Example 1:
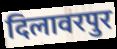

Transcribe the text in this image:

दिलावरपुर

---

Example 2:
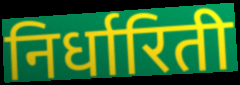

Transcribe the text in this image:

निर्धारिती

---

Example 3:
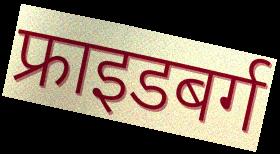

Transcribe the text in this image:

फ्राइडबर्ग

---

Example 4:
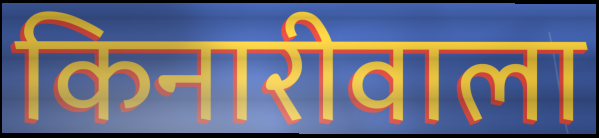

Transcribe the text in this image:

किनारीवाला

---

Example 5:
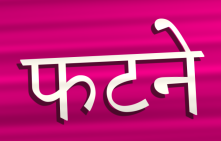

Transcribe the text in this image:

फटने